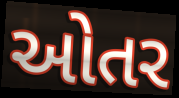
ઓતર